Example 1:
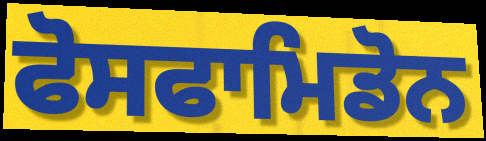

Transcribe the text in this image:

ਫੋਸਫਾਮਿਡੋਨ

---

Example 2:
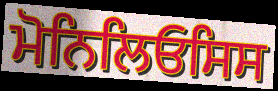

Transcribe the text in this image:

ਮੋਨਿਲਿਓਸਿਸ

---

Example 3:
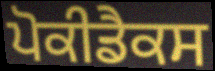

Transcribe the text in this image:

ਪੋਕੀਡੈਕਸ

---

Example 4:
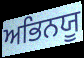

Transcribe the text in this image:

ਅਭਿਨਯੂ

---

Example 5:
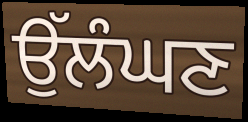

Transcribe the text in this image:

ਉੱਲੰਘਣ